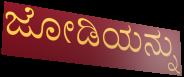
ಜೋಡಿಯನ್ನು